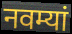
नवम्यां